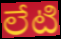
లేటి